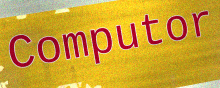
Computor